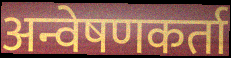
अन्वेषणकर्ता